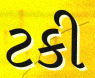
ટકી